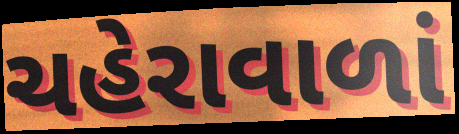
ચહેરાવાળાં